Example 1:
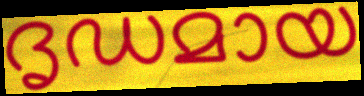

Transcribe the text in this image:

ദൃഡമായ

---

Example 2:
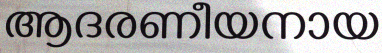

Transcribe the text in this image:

ആദരണീയനായ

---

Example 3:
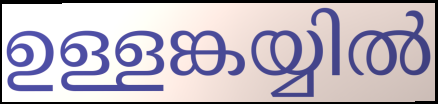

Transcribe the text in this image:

ഉള്ളങ്കയ്യിൽ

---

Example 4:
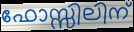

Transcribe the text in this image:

ഫോസ്സിലിന്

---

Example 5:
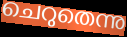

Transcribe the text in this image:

ചെറുതെന്നു